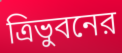
ত্রিভুবনের